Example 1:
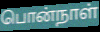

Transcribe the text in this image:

பொன்நாள்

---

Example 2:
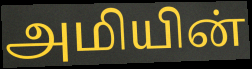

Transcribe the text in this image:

அமியின்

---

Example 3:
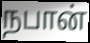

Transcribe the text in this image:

நபான்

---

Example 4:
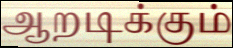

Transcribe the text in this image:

ஆறடிக்கும்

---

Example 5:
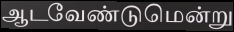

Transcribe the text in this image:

ஆடவேண்டுமென்று